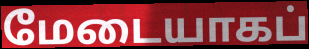
மேடையாகப்